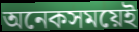
অনেকসময়েই